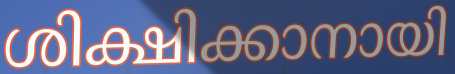
ശിക്ഷിക്കാനായി